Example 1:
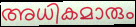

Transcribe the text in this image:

അധികമാരും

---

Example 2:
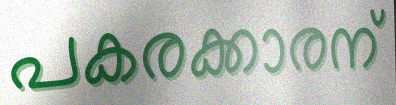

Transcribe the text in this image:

പകരക്കാരന്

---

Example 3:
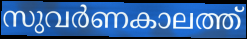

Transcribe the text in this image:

സുവർണകാലത്ത്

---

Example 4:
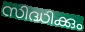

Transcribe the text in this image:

സിദ്ധിക്കും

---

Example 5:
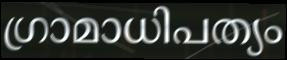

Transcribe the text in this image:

ഗ്രാമാധിപത്യം